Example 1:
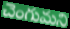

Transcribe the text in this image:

చెంగుమని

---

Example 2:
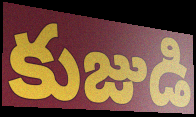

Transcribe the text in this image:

కుజుడి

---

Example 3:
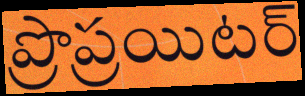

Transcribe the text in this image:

ప్రొప్రయిటర్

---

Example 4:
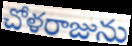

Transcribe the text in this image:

చోళరాజును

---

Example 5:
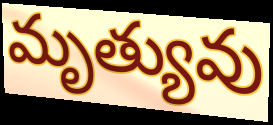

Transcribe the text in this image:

మృత్యువు